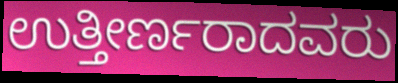
ಉತ್ತೀರ್ಣರಾದವರು